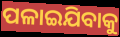
ପଳାଇଯିବାକୁ